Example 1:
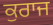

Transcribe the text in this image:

ਕੁਰਾਜ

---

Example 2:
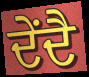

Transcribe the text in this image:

ਦੇਂਦੈ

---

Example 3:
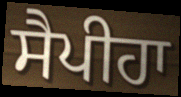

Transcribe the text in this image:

ਸੈਪੀਹਾ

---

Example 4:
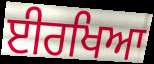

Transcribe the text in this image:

ਈਰਖਿਆ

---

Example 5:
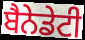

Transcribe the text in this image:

ਬੈਨੇਡੇਟੀ